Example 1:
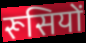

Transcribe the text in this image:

रूसियों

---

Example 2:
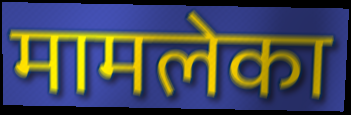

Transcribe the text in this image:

मामलेका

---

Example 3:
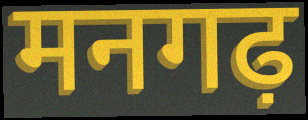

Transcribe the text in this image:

मनगढ़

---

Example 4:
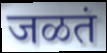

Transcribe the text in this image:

जळतं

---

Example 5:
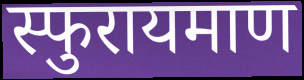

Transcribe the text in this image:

स्फुरायमाण